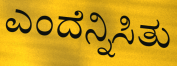
ಎಂದೆನ್ನಿಸಿತು